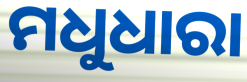
ମଧୁଧାରା